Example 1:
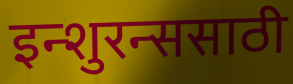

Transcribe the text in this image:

इन्शुरन्ससाठी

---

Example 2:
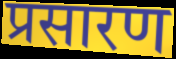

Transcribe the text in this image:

प्रसारण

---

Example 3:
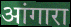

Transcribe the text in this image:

आंगारा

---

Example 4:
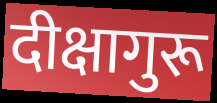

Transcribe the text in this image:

दीक्षागुरू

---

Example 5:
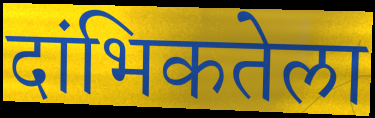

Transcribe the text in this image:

दांभिकतेला